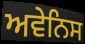
ਅਵੇਨਿਸ